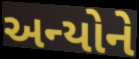
અન્યોને